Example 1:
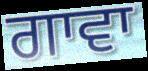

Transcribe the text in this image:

ਗਾਵਾ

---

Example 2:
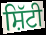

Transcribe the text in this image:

ਸ਼ਿੱਟੀ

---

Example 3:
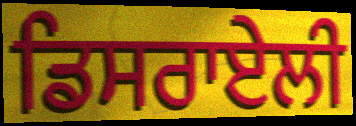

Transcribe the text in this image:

ਡਿਸਰਾਏਲੀ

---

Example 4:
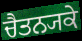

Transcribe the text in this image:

ਚੈਤਨ੍ਯਕੇ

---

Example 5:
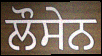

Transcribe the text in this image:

ਲੌਸੇਨ